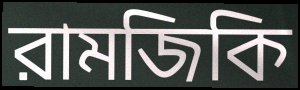
রামজিকি